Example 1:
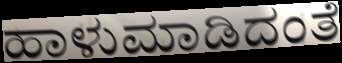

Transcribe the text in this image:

ಹಾಳುಮಾಡಿದಂತೆ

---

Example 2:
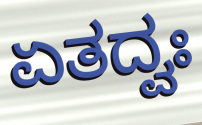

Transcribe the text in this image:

ಏತದ್ವಃ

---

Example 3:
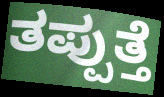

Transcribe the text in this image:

ತಪ್ಪುತ್ತೆ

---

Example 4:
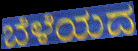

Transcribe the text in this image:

ಬೆಳೆಯದ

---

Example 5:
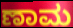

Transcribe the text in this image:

ಣಾಮ